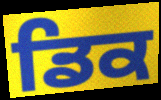
ਡਿਕ